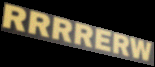
RRRRERW